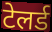
टेलर्ड